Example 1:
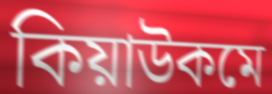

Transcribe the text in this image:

কিয়াউকমে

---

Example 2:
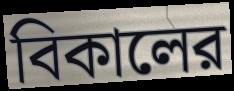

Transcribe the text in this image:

বিকালের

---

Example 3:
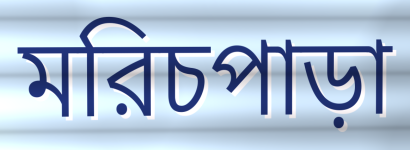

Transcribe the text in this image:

মরিচপাড়া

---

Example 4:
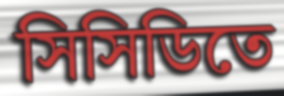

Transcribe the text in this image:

সিসিডিতে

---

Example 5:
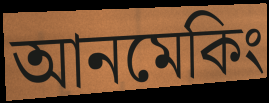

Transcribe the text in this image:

আনমেকিং